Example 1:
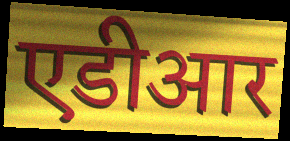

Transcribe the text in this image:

एडीआर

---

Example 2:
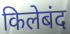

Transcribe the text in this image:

किलेबंद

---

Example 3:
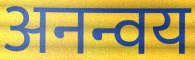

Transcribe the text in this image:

अनन्वय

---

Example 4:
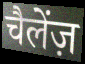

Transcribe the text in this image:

चैलेंज़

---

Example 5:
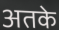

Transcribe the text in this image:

अतके